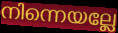
നിന്നെയല്ലേ